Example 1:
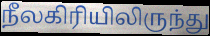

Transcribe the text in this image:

நீலகிரியிலிருந்து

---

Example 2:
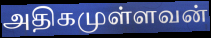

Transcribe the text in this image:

அதிகமுள்ளவன்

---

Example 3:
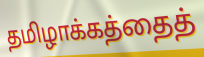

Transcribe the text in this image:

தமிழாக்கத்தைத்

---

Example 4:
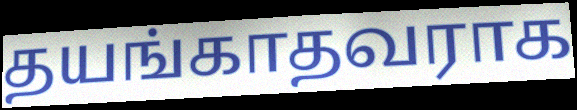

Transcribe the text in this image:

தயங்காதவராக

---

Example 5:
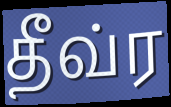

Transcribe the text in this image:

தீவ்ர